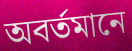
অবর্তমানে